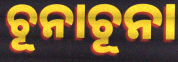
ଚୂନାଚୂନା